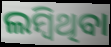
ଲମ୍ବିଥିବା